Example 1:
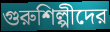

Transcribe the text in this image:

গুরুশিল্পীদের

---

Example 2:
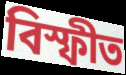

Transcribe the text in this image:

বিস্ফীত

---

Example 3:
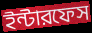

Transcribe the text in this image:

ইন্টারফেস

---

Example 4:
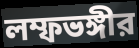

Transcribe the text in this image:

লম্ফভঙ্গীর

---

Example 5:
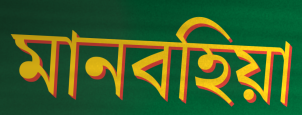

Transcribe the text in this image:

মানবহিয়া